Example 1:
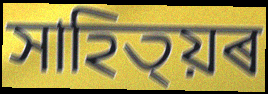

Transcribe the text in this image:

সাহিত্য়ৰ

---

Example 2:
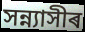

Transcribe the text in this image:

সন্ন্যাসীৰ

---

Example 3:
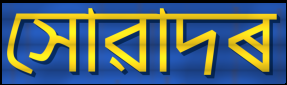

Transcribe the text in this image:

সোৱাদৰ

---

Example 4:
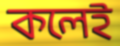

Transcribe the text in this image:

কলেই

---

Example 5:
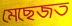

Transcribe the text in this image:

মেছেজত